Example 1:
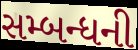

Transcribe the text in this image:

સમ્બન્ધની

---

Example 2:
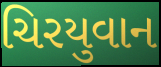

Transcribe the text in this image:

ચિરયુવાન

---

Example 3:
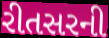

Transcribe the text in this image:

રીતસરની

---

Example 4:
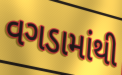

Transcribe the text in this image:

વગડામાંથી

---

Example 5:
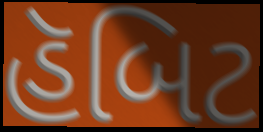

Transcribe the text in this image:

હૅબિટ